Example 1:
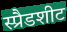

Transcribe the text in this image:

स्प्रैडशीट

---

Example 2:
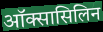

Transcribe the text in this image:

ऑक्सासिलिन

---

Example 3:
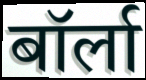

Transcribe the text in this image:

बॉर्ला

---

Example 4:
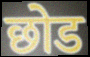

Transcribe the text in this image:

छोड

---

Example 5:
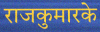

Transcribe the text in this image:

राजकुमारके